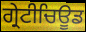
ਗ੍ਰੇਟੀਚਿਊਡ